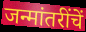
जन्मांतरींचें